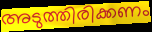
അടുത്തിരിക്കണം